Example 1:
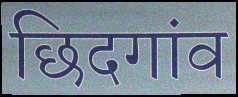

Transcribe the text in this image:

छिदगांव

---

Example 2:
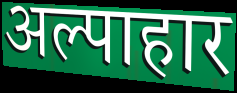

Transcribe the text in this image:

अल्पाहार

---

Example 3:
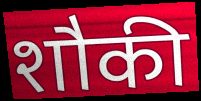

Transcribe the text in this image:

शौकी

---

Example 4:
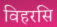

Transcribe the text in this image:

विहरसि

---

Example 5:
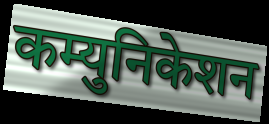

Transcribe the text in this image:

कम्युनिकेशन